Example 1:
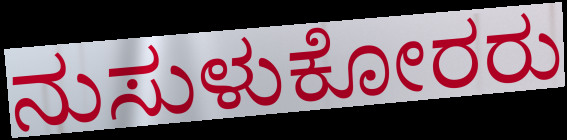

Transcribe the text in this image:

ನುಸುಳುಕೋರರು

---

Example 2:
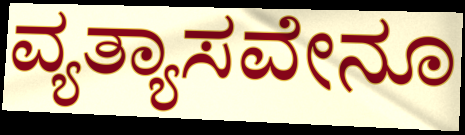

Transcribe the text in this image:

ವ್ಯತ್ಯಾಸವೇನೂ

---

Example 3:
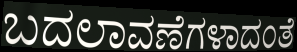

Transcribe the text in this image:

ಬದಲಾವಣೆಗಳಾದಂತೆ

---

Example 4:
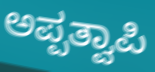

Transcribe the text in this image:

ಅಪ್ಪತ್ವಾಪಿ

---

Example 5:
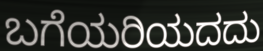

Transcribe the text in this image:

ಬಗೆಯರಿಯದದು